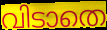
വിടാതെ